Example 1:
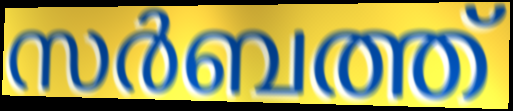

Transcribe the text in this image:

സർബത്ത്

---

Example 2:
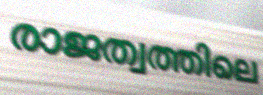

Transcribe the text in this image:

രാജത്വത്തിലെ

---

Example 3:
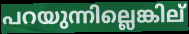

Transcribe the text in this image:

പറയുന്നില്ലെങ്കില്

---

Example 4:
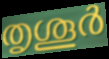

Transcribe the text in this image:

തൃശൂർ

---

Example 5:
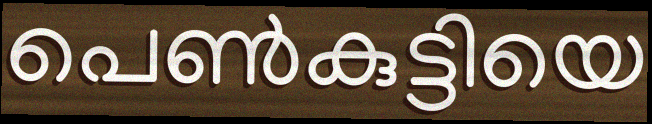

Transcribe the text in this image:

പെൺകുട്ടിയെ